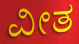
ವೀತ